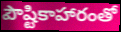
పౌష్టికాహారంతో